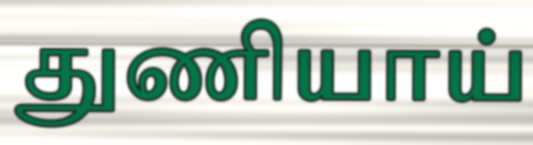
துணியாய்